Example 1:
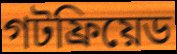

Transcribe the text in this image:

গটফ্রিয়েড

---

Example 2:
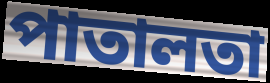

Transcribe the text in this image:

পাতালতা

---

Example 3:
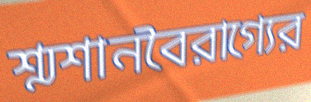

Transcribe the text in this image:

শ্মশানবৈরাগ্যের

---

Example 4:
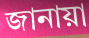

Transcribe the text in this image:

জানায়া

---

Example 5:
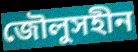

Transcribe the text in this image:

জৌলুসহীন